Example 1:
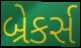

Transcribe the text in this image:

બ્રેકર્સ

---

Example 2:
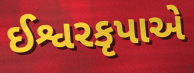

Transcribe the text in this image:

ઈશ્વરકૃપાએ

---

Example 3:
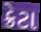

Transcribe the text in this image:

ક્રેટા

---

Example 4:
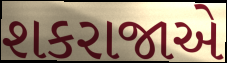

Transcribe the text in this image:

શકરાજાએ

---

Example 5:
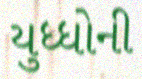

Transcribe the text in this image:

યુધ્ધોની